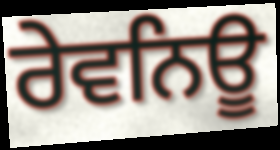
ਰੇਵਨਿਊ